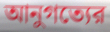
আনুগত্যের